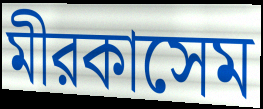
মীরকাসেম